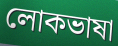
লোকভাষা